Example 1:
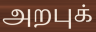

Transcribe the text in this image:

அறபுக்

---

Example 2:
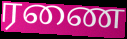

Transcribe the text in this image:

ரணை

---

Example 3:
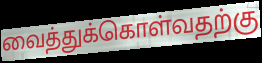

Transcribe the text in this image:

வைத்துக்கொள்வதற்கு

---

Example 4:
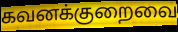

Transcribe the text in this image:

கவனக்குறைவை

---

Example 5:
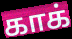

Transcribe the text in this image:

காக்